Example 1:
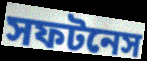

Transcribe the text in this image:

সফটনেস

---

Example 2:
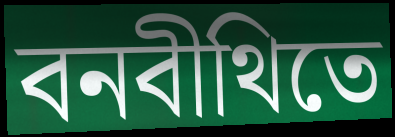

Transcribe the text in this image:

বনবীথিতে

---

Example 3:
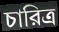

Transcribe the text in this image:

চারিত্র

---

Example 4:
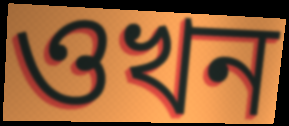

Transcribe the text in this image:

ওখন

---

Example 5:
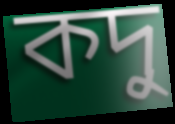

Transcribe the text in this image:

কদু